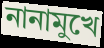
নানামুখে